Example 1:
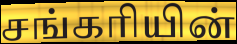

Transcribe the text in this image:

சங்கரியின்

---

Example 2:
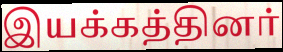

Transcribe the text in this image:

இயக்கத்தினர்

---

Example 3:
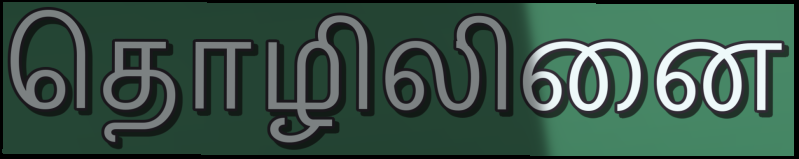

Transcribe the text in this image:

தொழிலினை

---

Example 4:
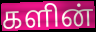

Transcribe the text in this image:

களின்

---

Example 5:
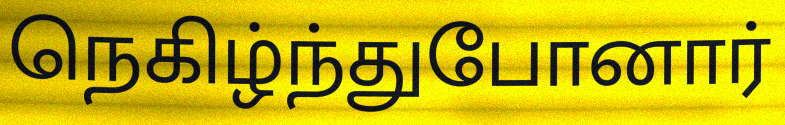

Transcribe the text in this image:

நெகிழ்ந்துபோனார்